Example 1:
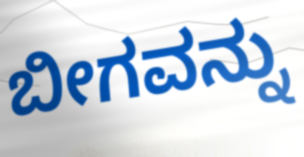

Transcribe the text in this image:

ಬೀಗವನ್ನು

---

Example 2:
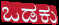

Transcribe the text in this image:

ಒಡಕು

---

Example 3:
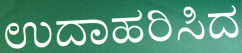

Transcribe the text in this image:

ಉದಾಹರಿಸಿದ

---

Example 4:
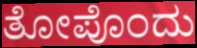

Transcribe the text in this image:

ತೋಪೊಂದು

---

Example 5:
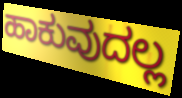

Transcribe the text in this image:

ಹಾಕುವುದಲ್ಲ